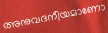
അനുവദനീയമാണോ